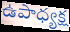
ఉపాధ్యక్ష